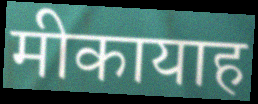
मीकायाह